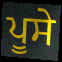
ਪੂਸੇ